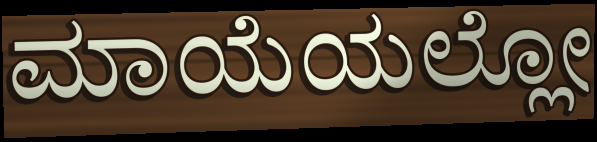
ಮಾಯೆಯಲ್ಲೋ